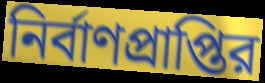
নির্বাণপ্রাপ্তির